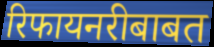
रिफायनरीबाबत